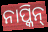
ନାପ୍କିନ୍